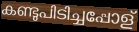
കണ്ടുപിടിച്ചപ്പോള്